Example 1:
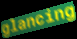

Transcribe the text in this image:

glancing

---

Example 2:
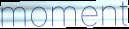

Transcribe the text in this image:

moment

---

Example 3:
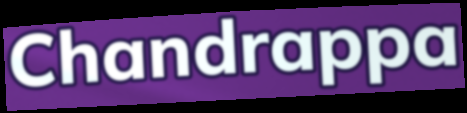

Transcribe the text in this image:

Chandrappa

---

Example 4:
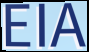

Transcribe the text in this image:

EIA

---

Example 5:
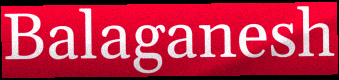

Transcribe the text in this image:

Balaganesh